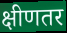
क्षीणतर